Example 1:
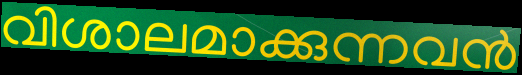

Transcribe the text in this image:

വിശാലമാക്കുന്നവൻ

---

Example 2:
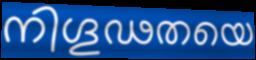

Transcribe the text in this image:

നിഗൂഢതയെ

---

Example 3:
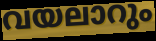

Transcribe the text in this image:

വയലാറും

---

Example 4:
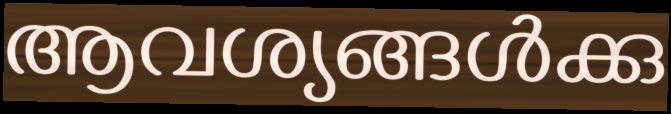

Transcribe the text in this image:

ആവശ്യങ്ങൾക്കു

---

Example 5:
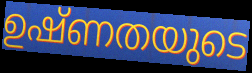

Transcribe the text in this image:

ഉഷ്ണതയുടെ